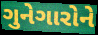
ગુનેગારોને